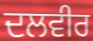
ਦਲਵੀਰ